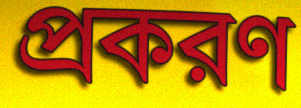
প্রকরণ